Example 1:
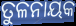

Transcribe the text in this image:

ତୁଳନାୟକ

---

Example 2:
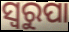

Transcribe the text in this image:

ସ୍ୱରୁପା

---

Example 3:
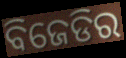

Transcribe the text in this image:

ବିଜେଡିର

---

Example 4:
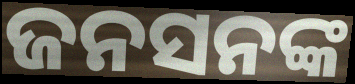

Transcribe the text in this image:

ଜନସନଙ୍କ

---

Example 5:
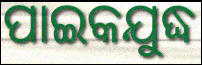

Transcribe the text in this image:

ପାଇକଯୁଦ୍ଧ